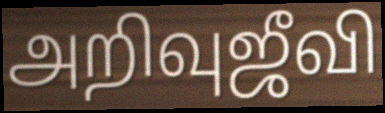
அறிவுஜீவி